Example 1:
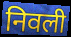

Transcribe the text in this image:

निवली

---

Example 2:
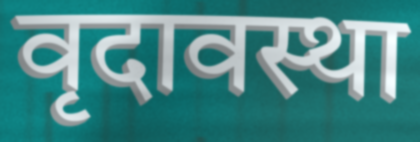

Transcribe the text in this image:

वृदावस्था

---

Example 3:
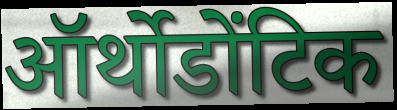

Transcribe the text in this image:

ऑर्थोडोंटिक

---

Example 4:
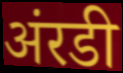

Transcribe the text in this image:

अंरडी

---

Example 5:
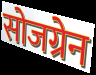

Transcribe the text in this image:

सोजग्रेन